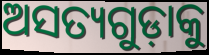
ଅସତ୍ୟଗୁଡ଼ାକୁ